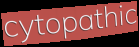
cytopathic